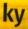
ky